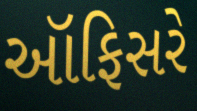
ઑફિસરે